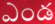
ఎండ